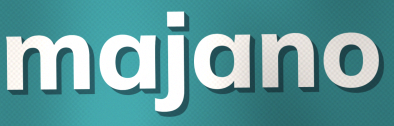
majano